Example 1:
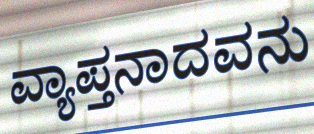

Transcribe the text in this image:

ವ್ಯಾಪ್ತನಾದವನು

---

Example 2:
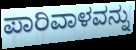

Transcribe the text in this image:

ಪಾರಿವಾಳವನ್ನು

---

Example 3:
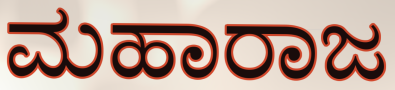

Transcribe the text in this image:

ಮಹಾರಾಜ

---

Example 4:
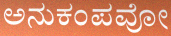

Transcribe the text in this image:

ಅನುಕಂಪವೋ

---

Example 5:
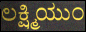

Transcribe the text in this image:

ಲಕ್ಷ್ಮಿಯುಂ